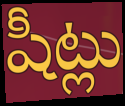
షీట్లు